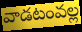
వాడటంవల్ల